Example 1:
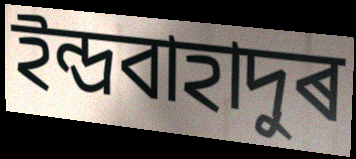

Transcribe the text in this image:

ইন্দ্ৰবাহাদুৰ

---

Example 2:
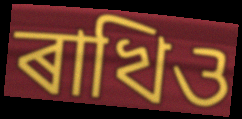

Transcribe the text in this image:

ৰাখিও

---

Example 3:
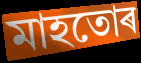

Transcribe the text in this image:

মাহতোৰ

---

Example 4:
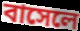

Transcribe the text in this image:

বাসেলে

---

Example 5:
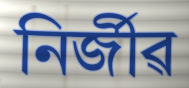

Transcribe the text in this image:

নিৰ্জীৱ